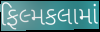
ફિલ્મકલામાં